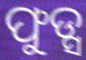
ଫୁଡ୍ସ